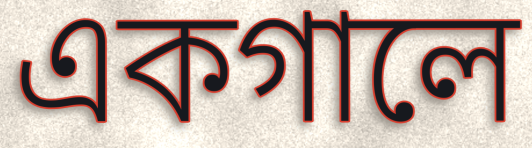
একগালে